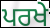
ਪਰਖੇ